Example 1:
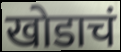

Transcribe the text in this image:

खोडाचं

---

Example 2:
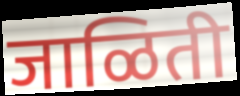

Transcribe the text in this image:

जाळिती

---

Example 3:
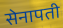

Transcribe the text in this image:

सेनापती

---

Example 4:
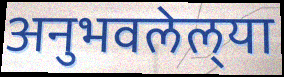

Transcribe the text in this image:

अनुभवलेल्या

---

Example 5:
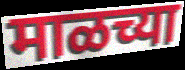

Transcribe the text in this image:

माळच्या